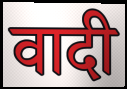
वादी